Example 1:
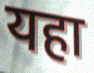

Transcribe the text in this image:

यहा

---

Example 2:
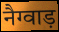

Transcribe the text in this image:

नैग्वाड़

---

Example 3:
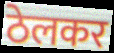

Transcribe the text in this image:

ठेलकर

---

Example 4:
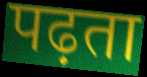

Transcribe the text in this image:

पढ़ता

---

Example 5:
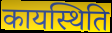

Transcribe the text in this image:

कायस्थिति